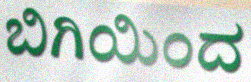
ಬಿಗಿಯಿಂದ